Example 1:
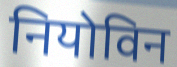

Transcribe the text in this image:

नियोविन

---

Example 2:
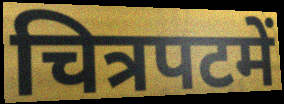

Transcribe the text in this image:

चित्रपटमें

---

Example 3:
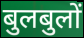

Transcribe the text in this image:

बुलबुलों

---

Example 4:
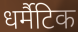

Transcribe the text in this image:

धर्मैटिक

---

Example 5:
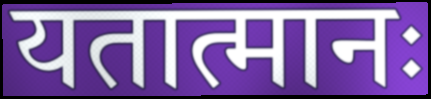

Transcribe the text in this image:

यतात्मानः